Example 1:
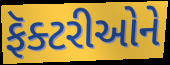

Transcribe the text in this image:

ફૅક્ટરીઓને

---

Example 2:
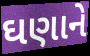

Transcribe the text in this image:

ઘણાને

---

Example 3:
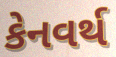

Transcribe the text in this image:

કેનવર્થ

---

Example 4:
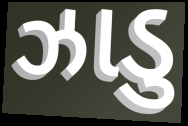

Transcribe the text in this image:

ઝાડુ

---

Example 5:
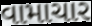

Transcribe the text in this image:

વામાચાર